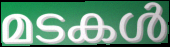
മടകൾ